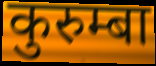
कुरुम्बा